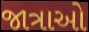
જાત્રાઓ